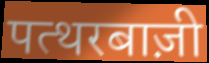
पत्थरबाज़ी